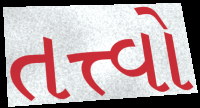
તત્ત્વો